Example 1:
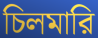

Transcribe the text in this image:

চিলমারি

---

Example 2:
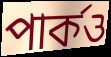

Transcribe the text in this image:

পার্কও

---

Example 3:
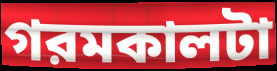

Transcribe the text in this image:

গরমকালটা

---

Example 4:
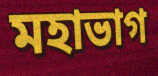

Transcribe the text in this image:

মহাভাগ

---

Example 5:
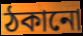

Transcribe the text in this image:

ঠকানো